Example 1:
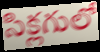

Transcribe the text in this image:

సిక్లగులో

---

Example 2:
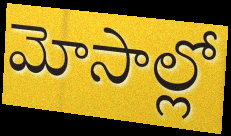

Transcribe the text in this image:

మోసాల్లో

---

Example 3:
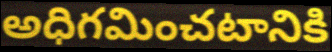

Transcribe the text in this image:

అధిగమించటానికి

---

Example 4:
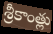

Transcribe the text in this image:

శ్రీకాంత్లు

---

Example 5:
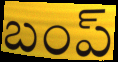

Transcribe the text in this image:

బంప్